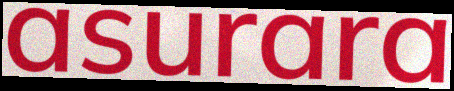
asurara